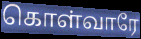
கொள்வாரே